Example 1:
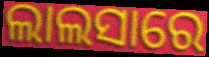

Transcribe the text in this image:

ଲାଲସାରେ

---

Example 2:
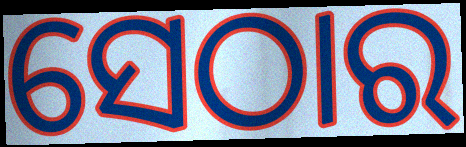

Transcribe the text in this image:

ସେଠାର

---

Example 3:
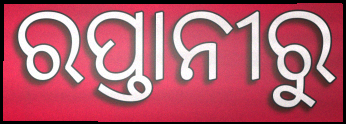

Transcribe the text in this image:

ରପ୍ତାନୀରୁ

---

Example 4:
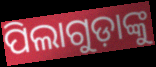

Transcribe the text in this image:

ପିଲାଗୁଡ଼ାଙ୍କୁ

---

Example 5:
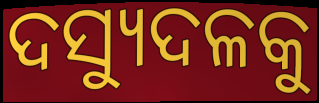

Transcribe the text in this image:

ଦସ୍ୟୁଦଳକୁ